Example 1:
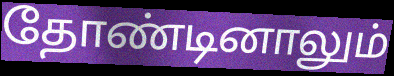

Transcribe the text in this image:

தோண்டினாலும்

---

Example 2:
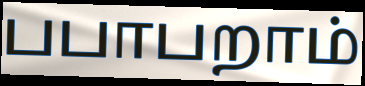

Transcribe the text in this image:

பபாபறாம்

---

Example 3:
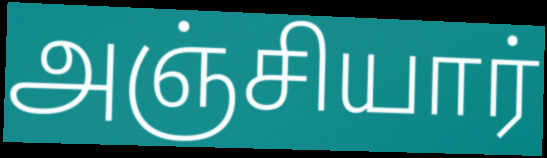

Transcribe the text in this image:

அஞ்சியார்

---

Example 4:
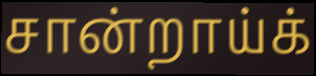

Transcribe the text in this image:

சான்றாய்க்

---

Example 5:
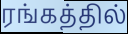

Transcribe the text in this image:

ரங்கத்தில்